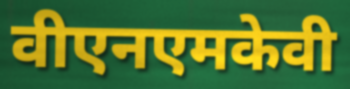
वीएनएमकेवी